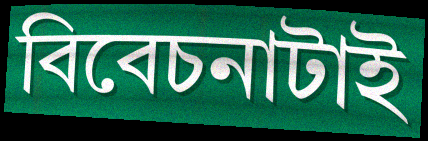
বিবেচনাটাই